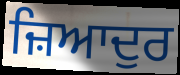
ਜ਼ਿਆਦੁਰ